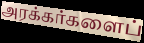
அரக்கர்களைப்